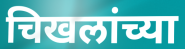
चिखलांच्या